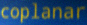
coplanar